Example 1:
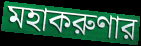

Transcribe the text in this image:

মহাকরুণার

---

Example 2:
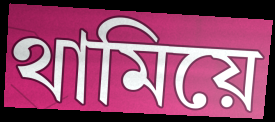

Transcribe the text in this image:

থামিয়ে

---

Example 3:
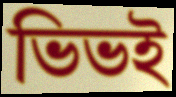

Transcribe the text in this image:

ভিভই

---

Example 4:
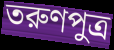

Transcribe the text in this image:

তরুণপুত্র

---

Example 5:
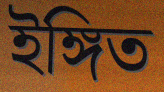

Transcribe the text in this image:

ইঙ্গিত